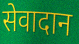
सेवादान